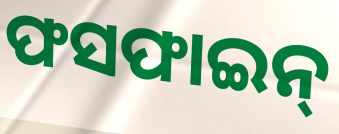
ଫସଫାଇନ୍